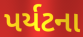
પર્યટના